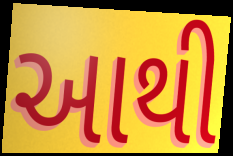
આથી